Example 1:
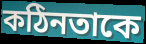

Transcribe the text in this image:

কঠিনতাকে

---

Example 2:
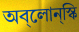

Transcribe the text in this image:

অব্‌লোন্‌স্কি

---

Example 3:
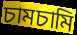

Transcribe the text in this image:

চামচামি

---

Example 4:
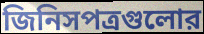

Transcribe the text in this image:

জিনিসপত্রগুলোর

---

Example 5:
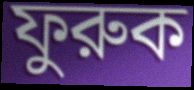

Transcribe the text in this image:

ফুরুক